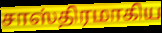
சாஸ்திரமாகிய